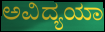
ಅವಿದ್ಯಯಾ